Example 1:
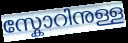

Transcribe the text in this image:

സ്കോറിനുള്ള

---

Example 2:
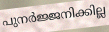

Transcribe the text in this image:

പുനർജ്ജനിക്കില്ല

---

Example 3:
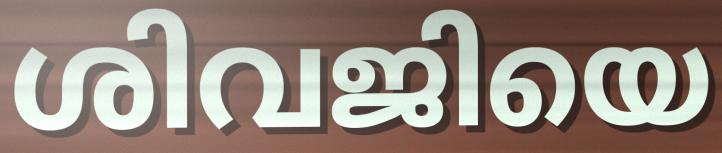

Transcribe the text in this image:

ശിവജിയെ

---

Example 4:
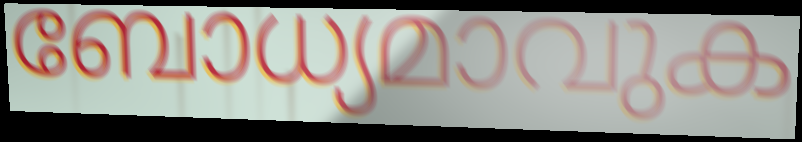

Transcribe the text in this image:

ബോധ്യമാവുക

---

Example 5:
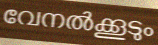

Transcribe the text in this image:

വേനൽക്കൂടും